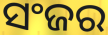
ସଂଜର